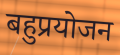
बहुप्रयोजन